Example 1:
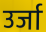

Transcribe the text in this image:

उर्जा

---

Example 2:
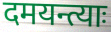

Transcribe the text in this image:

दमयन्त्याः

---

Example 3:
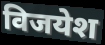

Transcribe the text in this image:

विजयेश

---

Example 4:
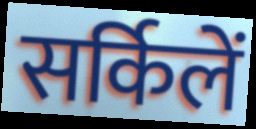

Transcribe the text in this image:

सर्किलें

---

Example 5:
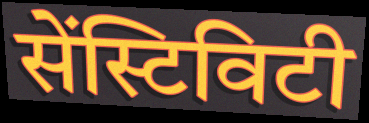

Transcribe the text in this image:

सेंस्टिविटी